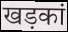
खड़कां